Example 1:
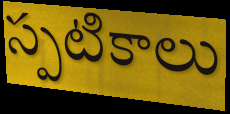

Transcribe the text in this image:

స్పటికాలు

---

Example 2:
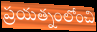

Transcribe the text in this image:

ప్రయత్నంలోంచి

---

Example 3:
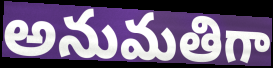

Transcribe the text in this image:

అనుమతిగా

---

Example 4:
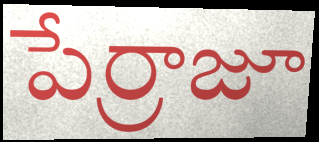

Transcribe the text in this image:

పేర్రాజూ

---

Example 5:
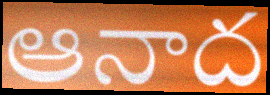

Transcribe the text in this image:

ఆనాద